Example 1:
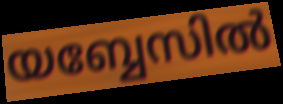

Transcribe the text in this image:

യബ്ബേസിൽ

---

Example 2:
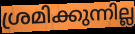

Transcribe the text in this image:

ശ്രമിക്കുന്നില്ല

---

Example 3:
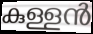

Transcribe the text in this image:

കുള്ളൻ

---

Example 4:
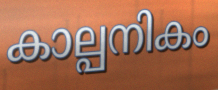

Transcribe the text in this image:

കാല്പനികം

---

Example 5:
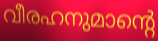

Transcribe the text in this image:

വീരഹനുമാന്റെ